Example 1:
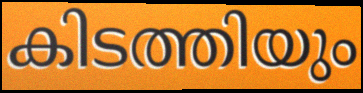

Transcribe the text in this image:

കിടത്തിയും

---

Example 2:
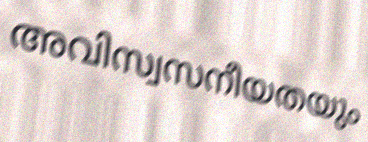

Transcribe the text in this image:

അവിസ്വസനീയതയും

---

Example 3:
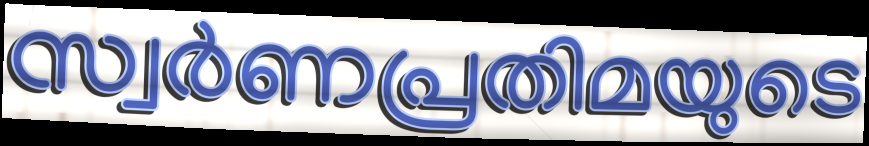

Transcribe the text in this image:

സ്വർണപ്രതിമയുടെ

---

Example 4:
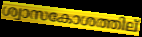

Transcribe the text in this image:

ശ്വാസകോശത്തില്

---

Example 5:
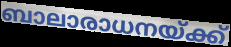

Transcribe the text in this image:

ബാലാരാധനയ്ക്ക്